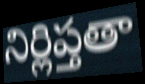
నిర్లిప్తతా